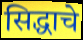
सिद्धाचे